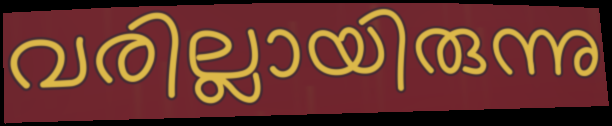
വരില്ലായിരുന്നു